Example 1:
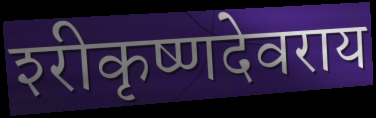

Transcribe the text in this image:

श्रीकृष्णदेवराय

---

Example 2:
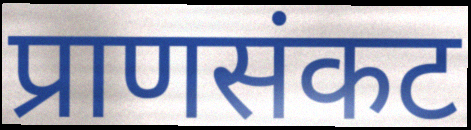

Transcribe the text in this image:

प्राणसंकट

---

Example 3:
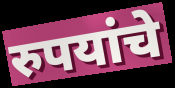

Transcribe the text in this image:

रुपयांचे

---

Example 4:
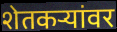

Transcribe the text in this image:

शेतकर्‍यांवर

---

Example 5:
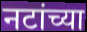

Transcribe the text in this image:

नटांच्या